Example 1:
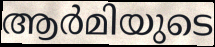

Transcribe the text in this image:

ആർമിയുടെ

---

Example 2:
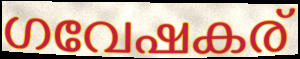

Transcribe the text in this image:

ഗവേഷകര്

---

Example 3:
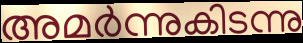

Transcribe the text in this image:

അമർന്നുകിടന്നു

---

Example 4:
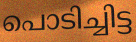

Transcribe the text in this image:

പൊടിച്ചിട്ട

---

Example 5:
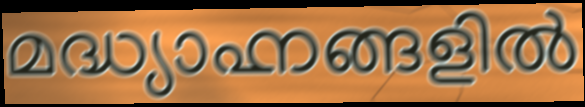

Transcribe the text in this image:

മദ്ധ്യാഹ്നങ്ങളിൽ